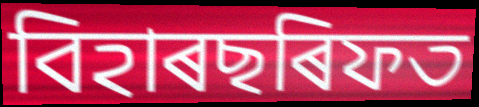
বিহাৰছৰিফত